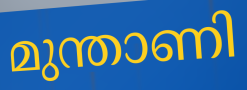
മുന്താണി